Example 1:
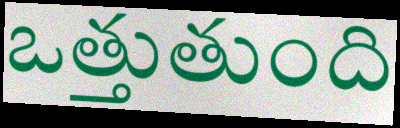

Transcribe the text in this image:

ఒత్తుతుంది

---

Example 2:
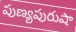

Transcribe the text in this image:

పుణ్యపురుషా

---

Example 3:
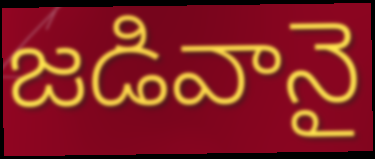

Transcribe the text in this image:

జడివానై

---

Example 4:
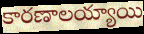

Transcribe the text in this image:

కారణాలయ్యాయి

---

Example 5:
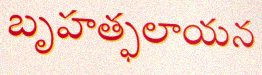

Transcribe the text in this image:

బృహత్ఫలాయన